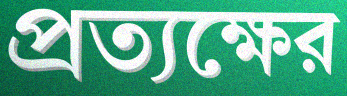
প্রত্যক্ষের